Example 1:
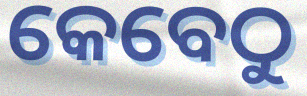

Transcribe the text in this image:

କେବେଠୁ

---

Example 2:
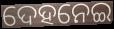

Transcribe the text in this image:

ଦେହନେଇ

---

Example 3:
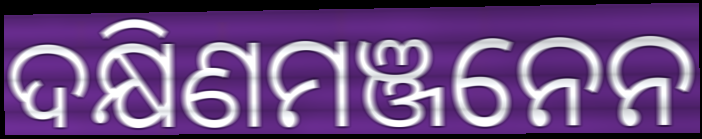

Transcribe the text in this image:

ଦକ୍ଷିଣମଞ୍ଜନେନ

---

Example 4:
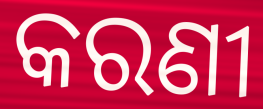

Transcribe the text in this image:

କରଣୀ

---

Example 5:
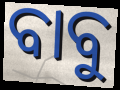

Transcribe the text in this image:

ବାବୁ